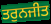
ਤਰੁਨਜੀਤ